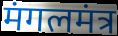
मंगलमंत्र